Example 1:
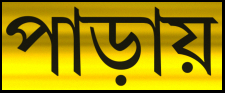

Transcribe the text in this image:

পাড়ায়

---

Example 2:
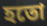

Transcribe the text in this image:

হতো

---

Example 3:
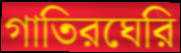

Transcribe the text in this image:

গাতিরঘেরি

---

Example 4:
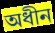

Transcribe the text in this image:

অধীন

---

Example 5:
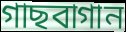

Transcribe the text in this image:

গাছবাগান